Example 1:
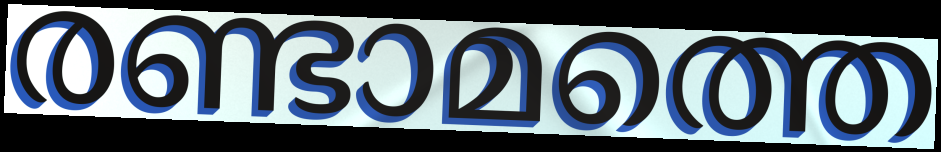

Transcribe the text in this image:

രണ്ടാമത്തെ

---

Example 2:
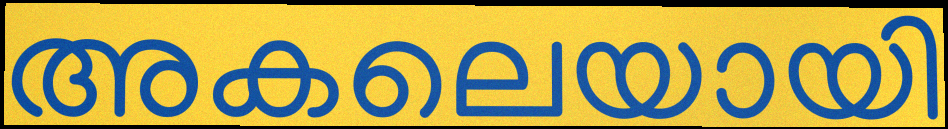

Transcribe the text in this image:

അകലെയായി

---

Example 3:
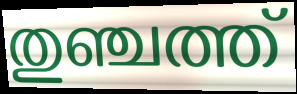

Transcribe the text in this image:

തുഞ്ചത്ത്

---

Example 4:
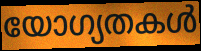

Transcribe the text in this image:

യോഗ്യതകൾ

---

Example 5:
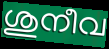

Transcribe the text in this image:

ശുനീവ